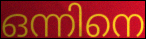
ഒന്നിനെ